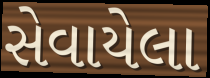
સેવાયેલા